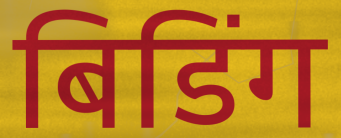
बिडिंग